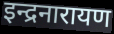
इन्द्रनारायण